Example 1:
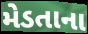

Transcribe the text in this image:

મેડતાના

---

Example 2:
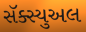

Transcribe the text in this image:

સૅક્સ્યુઅલ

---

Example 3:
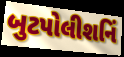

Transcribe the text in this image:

બુટપોલીશનિં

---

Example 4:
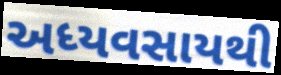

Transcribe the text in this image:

અધ્યવસાયથી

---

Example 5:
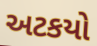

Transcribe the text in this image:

અટકયો